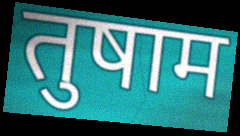
तुषाम